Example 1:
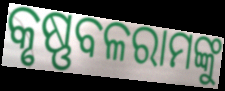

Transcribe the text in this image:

କୃଷ୍ଣବଳରାମଙ୍କୁ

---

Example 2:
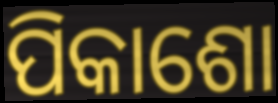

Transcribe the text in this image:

ପିକାଶୋ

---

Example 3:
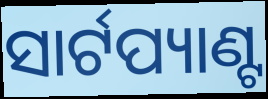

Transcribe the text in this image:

ସାର୍ଟପ୍ୟାଣ୍ଟ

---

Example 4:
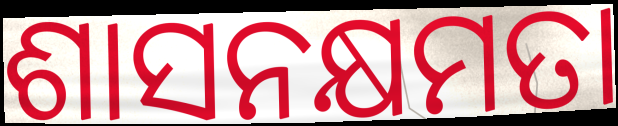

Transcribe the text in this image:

ଶାସନକ୍ଷମତା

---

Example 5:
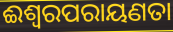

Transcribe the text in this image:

ଈଶ୍ୱରପରାୟଣତା